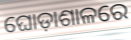
ଘୋଡ଼ାଶାଳରେ